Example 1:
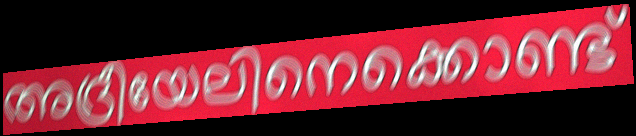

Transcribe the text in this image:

അദ്രീയേലിനെക്കൊണ്ട്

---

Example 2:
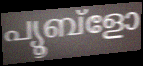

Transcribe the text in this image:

പ്യൂബ്ളോ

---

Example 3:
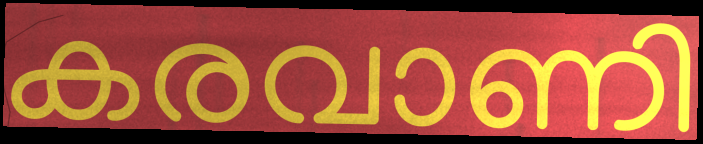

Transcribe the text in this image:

കരവാണി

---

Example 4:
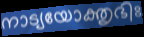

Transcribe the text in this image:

നാട്യയോക്തൃഭിഃ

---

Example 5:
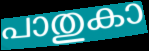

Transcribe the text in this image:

പാതുകാ